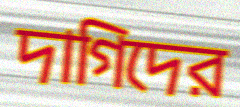
দাগিদের